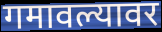
गमावल्यावर